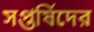
সপ্তর্ষিদের